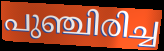
പുഞ്ചിരിച്ച